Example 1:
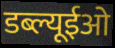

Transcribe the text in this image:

डब्ल्यूईओ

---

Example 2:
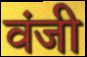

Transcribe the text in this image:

वंजी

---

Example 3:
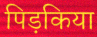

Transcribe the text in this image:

पिड़किया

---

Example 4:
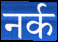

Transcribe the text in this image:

नर्क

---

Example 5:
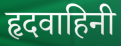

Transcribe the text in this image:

हृदवाहिनी